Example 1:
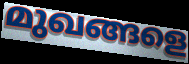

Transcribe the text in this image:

മുഖങ്ങളെ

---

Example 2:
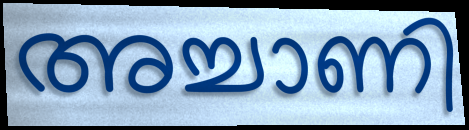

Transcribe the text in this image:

അച്ചാണി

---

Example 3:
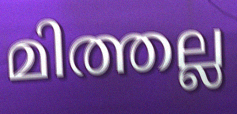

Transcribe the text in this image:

മിത്തല്ല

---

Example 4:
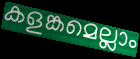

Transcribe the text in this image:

കളങ്കമെല്ലാം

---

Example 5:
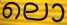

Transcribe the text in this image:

ലൊ